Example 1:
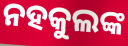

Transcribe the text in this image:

ନହକୁଲଙ୍କ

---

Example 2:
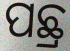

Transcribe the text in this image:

ପଛ୍ର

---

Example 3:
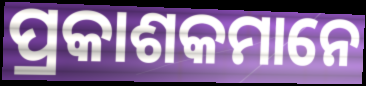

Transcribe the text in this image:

ପ୍ରକାଶକମାନେ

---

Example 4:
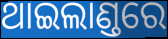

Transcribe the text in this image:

ଥାଇଲାଣ୍ଡରେ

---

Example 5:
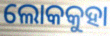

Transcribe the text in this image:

ଲୋକକୁହା